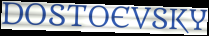
DOSTOEVSKY